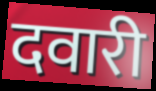
दवारी